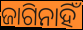
ଜାଗିନାହିଁ